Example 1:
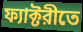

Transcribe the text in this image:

ফ্যাক্টরীতে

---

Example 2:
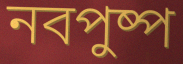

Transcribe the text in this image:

নবপুষ্প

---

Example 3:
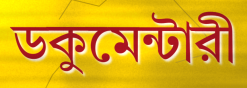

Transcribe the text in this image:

ডকুমেন্টারী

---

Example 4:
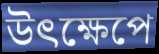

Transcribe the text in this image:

উৎক্ষেপে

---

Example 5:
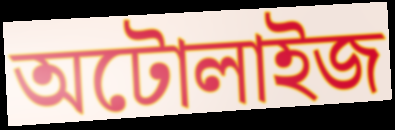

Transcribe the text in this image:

অটোলাইজ